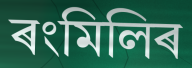
ৰংমিলিৰ